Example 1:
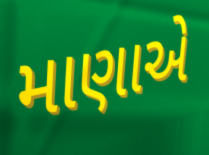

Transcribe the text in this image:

માણાએ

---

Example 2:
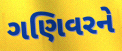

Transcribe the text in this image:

ગણિવરને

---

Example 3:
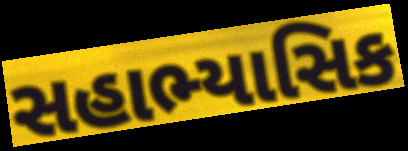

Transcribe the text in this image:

સહાભ્યાસિક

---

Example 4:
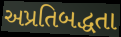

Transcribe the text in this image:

અપ્રતિબદ્ધતા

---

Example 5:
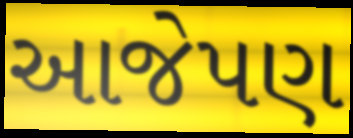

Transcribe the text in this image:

આજેપણ